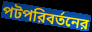
পটপরিবর্তনের